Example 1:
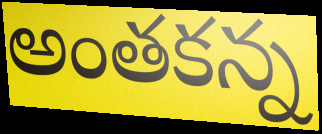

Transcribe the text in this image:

అంతకన్న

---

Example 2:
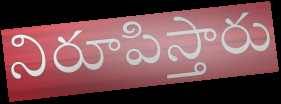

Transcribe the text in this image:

నిరూపిస్తారు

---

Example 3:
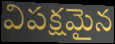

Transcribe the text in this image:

విపక్షమైన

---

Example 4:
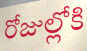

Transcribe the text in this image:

రోజుల్లోకి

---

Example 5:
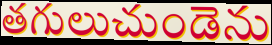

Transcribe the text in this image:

తగులుచుండెను